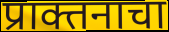
प्राक्तनाचा